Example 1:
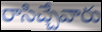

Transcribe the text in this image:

రాసిచ్చేవారు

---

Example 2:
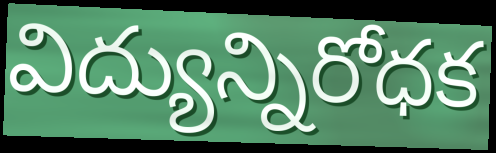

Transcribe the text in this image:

విద్యున్నిరోధక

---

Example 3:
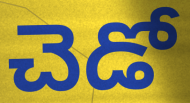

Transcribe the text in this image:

చెడో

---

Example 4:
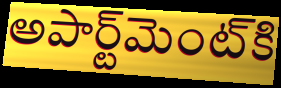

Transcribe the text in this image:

అపార్ట్‌మెంట్‌కి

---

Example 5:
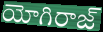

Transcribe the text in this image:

యోగిరాజ్